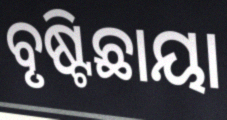
ବୃଷ୍ଟିଛାୟା